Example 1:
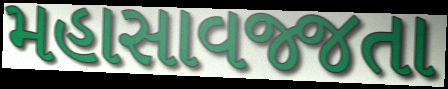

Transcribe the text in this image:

મહાસાવજ્જતા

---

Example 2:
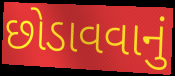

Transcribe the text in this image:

છોડાવવાનું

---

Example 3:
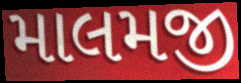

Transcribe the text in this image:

માલમજી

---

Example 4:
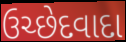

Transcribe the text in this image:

ઉચ્છેદવાદા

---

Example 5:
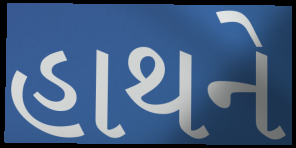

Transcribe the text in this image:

હાથને